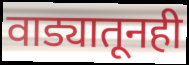
वाड्यातूनही